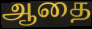
ஆதை